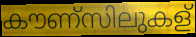
കൗണ്സിലുകള്